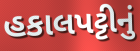
હકાલપટ્ટીનું